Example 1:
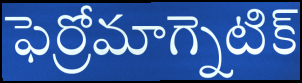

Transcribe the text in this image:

ఫెర్రోమాగ్నెటిక్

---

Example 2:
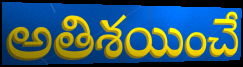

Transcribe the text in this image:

అతిశయించే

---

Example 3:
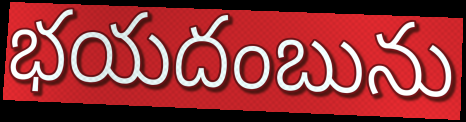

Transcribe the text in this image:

భయదంబును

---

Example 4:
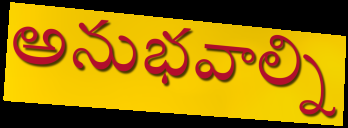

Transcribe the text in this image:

అనుభవాల్ని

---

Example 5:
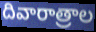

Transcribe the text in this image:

దివారాత్రాల